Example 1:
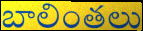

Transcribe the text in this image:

బాలింతలు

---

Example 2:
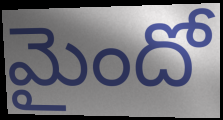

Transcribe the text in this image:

మైందో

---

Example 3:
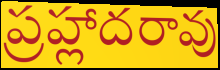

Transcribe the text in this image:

ప్రహ్లాదరావు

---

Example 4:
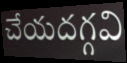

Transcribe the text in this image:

చేయదగ్గవి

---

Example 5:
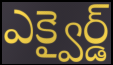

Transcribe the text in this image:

ఎక్వైర్డ్